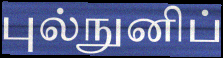
புல்நுனிப்